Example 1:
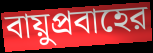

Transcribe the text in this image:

বায়ুপ্রবাহের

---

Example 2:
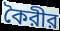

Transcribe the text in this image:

কৈরীর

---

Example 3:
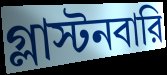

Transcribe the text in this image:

গ্লাস্টনবারি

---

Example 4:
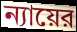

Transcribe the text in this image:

ন্যায়ের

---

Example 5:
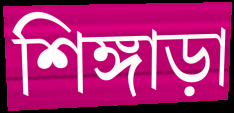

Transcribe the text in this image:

শিঙ্গাড়া